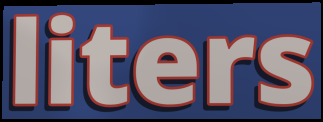
liters